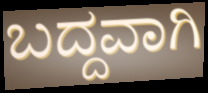
ಬದ್ದವಾಗಿ